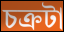
চক্রটা